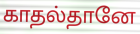
காதல்தானே